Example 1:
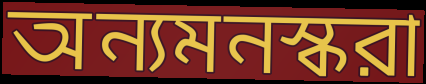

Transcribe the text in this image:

অন্যমনস্করা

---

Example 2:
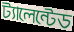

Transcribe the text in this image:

ট্যালেন্টেড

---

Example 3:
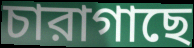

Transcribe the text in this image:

চারাগাছে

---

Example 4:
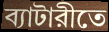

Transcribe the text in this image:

ব্যাটারীতে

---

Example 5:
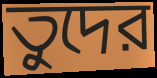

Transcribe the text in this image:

তুদের